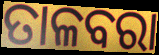
ତାଳବରା